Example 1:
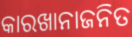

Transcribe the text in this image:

କାରଖାନାଜନିତ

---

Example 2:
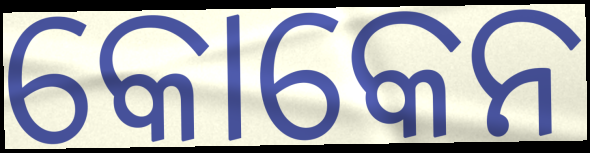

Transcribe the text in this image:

କୋକେନ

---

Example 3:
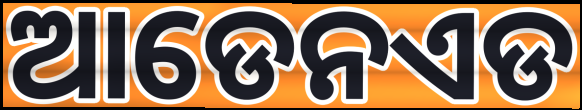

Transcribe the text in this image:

ଆଡେନଏଡ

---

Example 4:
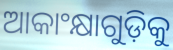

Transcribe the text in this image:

ଆକାଂକ୍ଷାଗୁଡ଼ିକୁ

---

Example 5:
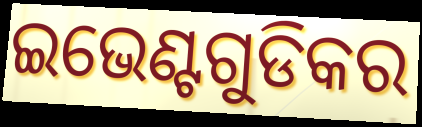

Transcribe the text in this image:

ଇଭେଣ୍ଟଗୁଡିକର